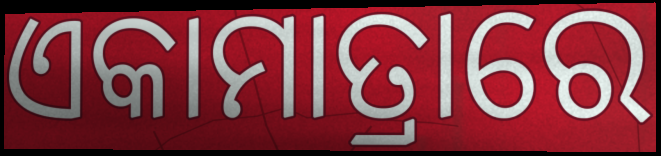
ଏକାମାତ୍ରାରେ